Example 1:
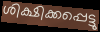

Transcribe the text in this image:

ശിക്ഷിക്കപ്പെട്ടു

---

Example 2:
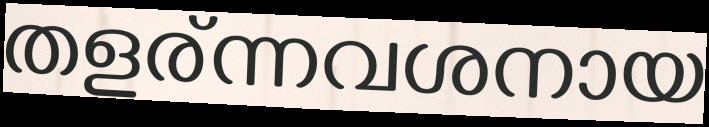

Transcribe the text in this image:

തളര്ന്നവശനായ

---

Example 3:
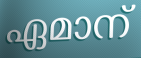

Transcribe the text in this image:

ഏമാന്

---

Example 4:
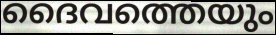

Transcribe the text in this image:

ദൈവത്തെയും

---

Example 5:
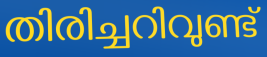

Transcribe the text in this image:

തിരിച്ചറിവുണ്ട്